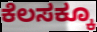
ಕೆಲಸಕ್ಕೂ